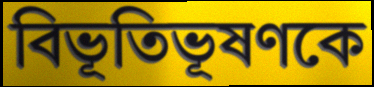
বিভূতিভূষণকে